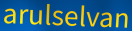
arulselvan